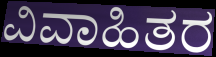
ವಿವಾಹಿತರ